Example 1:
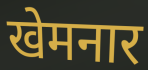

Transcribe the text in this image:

खेमनार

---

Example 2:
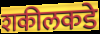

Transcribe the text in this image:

शकीलकडे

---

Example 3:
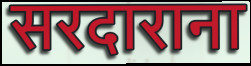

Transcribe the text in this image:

सरदाराना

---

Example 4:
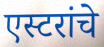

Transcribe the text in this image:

एस्टरांचे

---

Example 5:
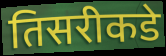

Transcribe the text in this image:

तिसरीकडे